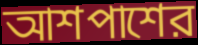
আশপাশের